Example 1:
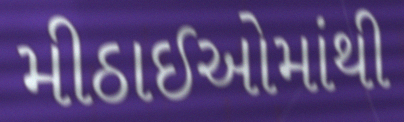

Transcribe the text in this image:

મીઠાઈઓમાંથી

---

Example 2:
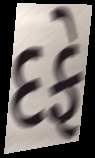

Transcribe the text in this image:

દફે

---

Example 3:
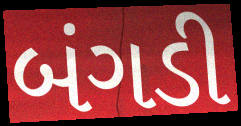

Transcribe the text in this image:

બંગડી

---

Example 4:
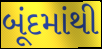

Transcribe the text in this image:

બૂંદમાંથી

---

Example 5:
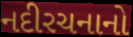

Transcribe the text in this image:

નદીરચનાનો